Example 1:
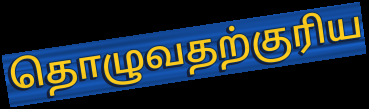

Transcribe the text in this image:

தொழுவதற்குரிய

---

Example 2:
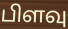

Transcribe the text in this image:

பிளவு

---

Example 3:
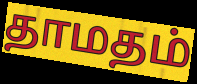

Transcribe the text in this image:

தாமதம்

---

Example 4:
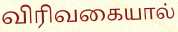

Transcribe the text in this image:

விரிவகையால்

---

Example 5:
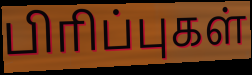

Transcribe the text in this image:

பிரிப்புகள்